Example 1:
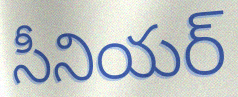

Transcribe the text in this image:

సీనియర్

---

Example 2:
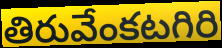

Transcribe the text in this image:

తిరువేంకటగిరి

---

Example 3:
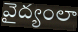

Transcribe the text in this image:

వైద్యంలా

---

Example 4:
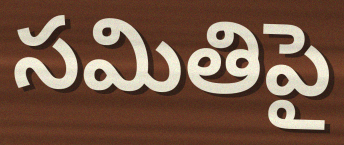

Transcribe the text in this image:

సమితిపై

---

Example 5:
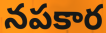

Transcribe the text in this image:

నపకార